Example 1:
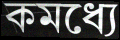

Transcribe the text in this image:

কমধ্যে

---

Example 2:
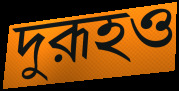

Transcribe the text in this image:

দুরূহও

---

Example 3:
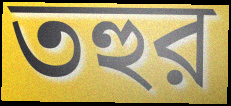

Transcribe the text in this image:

তহুর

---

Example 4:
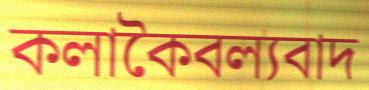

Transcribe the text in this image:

কলাকৈবল্যবাদ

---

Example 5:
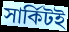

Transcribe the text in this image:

সার্কিটই